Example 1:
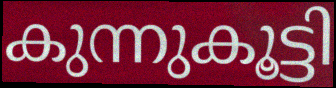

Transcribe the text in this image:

കുന്നുകൂട്ടി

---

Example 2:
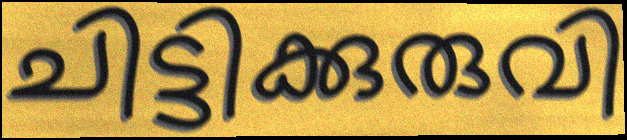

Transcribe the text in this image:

ചിട്ടിക്കുരുവി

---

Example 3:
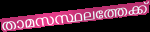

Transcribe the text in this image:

താമസസ്ഥലത്തേക്ക്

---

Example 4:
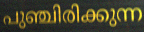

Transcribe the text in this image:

പുഞ്ചിരിക്കുന്ന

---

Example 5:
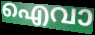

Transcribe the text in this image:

ഐവാ